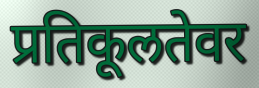
प्रतिकूलतेवर